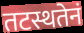
तटस्थतेनं